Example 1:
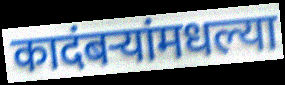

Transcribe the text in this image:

कादंबऱ्यांमधल्या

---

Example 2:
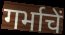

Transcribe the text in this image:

गर्भाचें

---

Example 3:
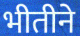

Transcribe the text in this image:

भीतीने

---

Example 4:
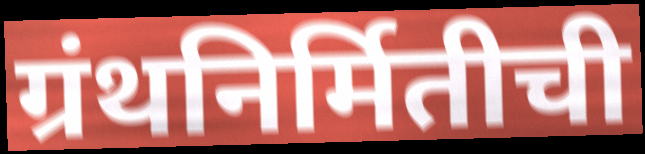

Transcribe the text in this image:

ग्रंथनिर्मितीची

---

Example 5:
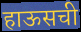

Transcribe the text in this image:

हाऊसची